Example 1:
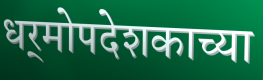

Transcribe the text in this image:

धर्मोपदेशकाच्या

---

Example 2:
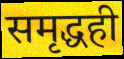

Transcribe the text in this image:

समृद्धही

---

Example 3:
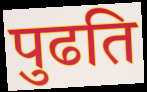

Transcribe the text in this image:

पुढति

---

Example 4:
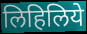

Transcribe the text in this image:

लिहिलिये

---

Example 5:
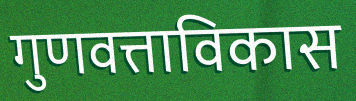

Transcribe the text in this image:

गुणवत्ताविकास